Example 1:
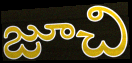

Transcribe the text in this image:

జూచి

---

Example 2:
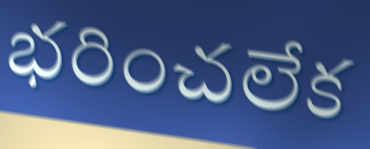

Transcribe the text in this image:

భరించలేక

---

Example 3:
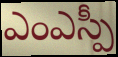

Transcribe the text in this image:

ఎంఎస్పీ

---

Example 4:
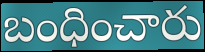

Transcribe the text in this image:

బంధించారు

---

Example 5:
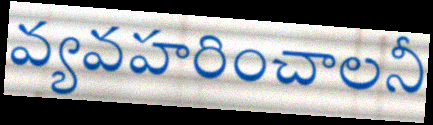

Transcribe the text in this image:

వ్యవహరించాలనీ